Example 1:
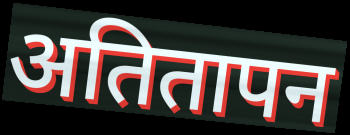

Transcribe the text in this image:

अतितापन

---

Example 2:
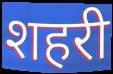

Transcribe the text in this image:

शहरी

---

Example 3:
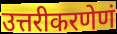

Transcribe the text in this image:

उत्तरीकरणेणं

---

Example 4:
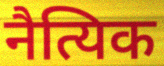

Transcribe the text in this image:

नैत्यिक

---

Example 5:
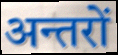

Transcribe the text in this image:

अन्तरों